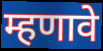
म्हणावे